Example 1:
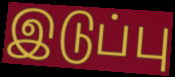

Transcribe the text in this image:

இடுப்பு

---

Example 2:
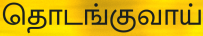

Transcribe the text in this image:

தொடங்குவாய்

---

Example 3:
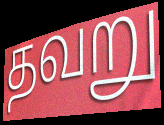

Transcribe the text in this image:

தவறு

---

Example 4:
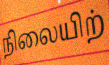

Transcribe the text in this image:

நிலையிற்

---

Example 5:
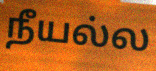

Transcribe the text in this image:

நீயல்ல